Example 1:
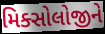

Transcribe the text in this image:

મિક્સોલોજીને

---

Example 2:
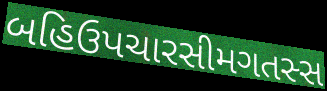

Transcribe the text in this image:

બહિઉપચારસીમગતસ્સ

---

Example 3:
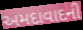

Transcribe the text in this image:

અમદાવાદની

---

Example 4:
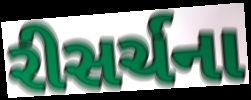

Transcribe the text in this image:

રીસર્ચના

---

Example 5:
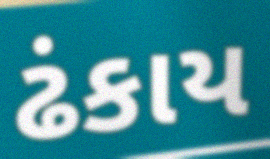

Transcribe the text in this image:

ઢંકાય